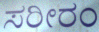
ಸರೀರಂ